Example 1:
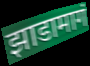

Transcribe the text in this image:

झाडामागं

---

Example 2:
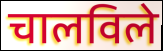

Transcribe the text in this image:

चालविले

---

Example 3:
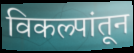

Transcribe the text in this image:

विकल्पांतून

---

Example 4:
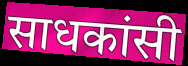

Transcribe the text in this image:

साधकांसी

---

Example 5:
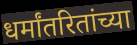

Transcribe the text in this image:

धर्मांतरितांच्या